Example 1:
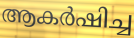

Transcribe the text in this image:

ആകർഷിച്ച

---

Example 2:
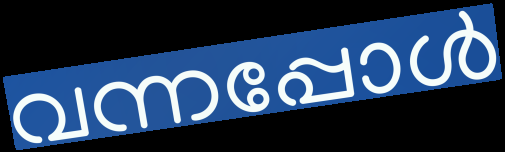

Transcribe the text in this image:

വന്നപ്പോൾ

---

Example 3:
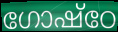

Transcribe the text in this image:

ഗോഷ്ഠേ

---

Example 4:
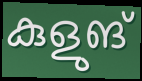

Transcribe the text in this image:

കുളുങ്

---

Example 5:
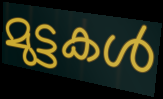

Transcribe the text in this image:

മുട്ടകൾ